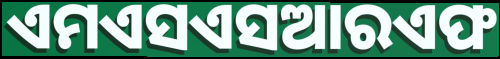
ଏମଏସଏସଆରଏଫ